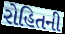
રોહિતની